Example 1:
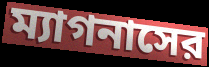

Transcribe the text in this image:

ম্যাগনাসের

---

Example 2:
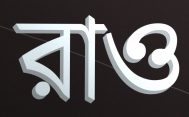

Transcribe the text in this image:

রাও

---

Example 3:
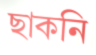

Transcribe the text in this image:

ছাকনি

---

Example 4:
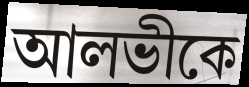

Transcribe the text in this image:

আলভীকে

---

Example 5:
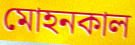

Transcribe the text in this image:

মোহনকাল